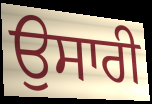
ਉਸਾਰੀ